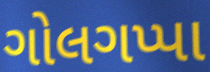
ગોલગપ્પા